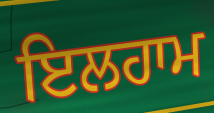
ਇਲਹਾਮ